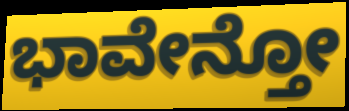
ಭಾವೇನ್ತೋ